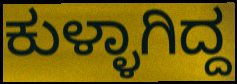
ಕುಳ್ಳಾಗಿದ್ದ